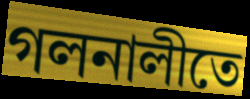
গলনালীতে